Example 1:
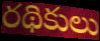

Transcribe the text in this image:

రథికులు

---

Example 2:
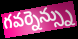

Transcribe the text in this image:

గవర్నెన్స్ను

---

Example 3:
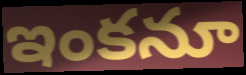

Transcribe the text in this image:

ఇంకనూ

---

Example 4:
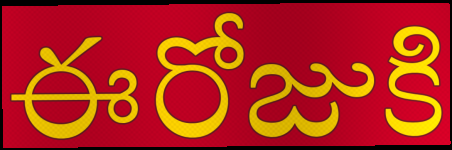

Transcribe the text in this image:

ఈరోజుకి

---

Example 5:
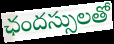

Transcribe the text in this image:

ఛందస్సులతో